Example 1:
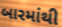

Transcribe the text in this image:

બારમાંથી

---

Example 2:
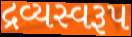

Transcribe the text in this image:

દ્રવ્યસ્વરૂપ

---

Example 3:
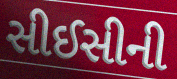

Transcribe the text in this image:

સીઈસીની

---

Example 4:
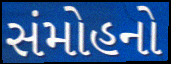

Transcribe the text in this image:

સંમોહનો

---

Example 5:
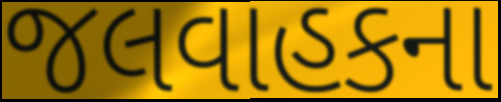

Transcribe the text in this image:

જલવાહકના